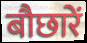
बौछारें